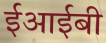
ईआईबी